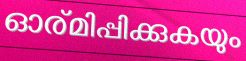
ഓര്മിപ്പിക്കുകയും